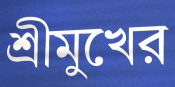
শ্রীমুখের